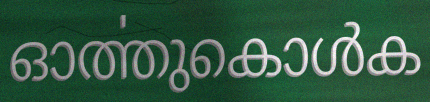
ഓൎത്തുകൊൾക